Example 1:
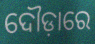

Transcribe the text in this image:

ଦୌଡ଼ାରେ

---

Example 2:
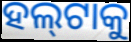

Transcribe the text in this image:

ହଲ୍‌ଟାକୁ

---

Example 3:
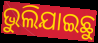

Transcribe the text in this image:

ଭୁଲିଯାଇଛୁ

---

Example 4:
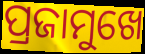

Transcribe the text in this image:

ପ୍ରଜାମୁଖେ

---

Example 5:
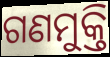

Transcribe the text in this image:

ଗଣମୁକ୍ତି